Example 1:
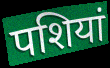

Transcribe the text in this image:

पशियां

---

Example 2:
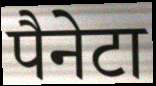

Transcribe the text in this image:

पैनेटा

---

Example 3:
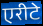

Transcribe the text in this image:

एरीटे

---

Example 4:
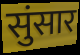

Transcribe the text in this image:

सुंसार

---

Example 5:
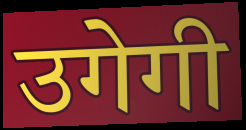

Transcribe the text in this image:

उगेगी